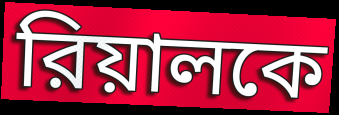
রিয়ালকে